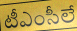
టీఎంసీలే